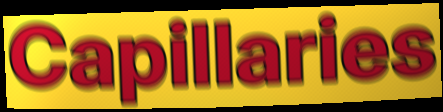
Capillaries